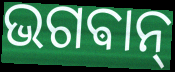
ଭଗଵାନ୍